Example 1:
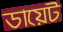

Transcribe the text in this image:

ডায়েট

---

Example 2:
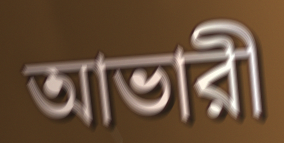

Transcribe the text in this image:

আভারী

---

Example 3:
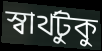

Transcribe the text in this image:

স্বার্থটুকু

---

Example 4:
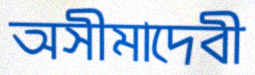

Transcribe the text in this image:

অসীমাদেবী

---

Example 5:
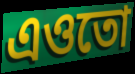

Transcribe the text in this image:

এওতো